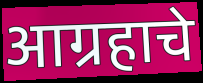
आग्रहाचे